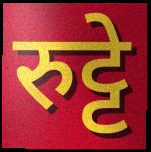
रुट्टे